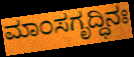
ಮಾಂಸಗೃದ್ಧಿನಃ